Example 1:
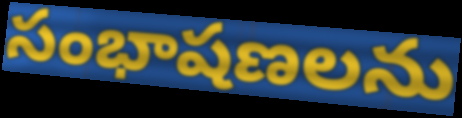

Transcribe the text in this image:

సంభాషణలను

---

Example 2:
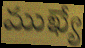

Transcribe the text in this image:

ముఖ్యే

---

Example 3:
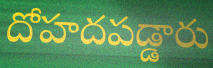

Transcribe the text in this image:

దోహదపడ్డారు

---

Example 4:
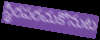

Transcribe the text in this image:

స్థిరపరచుకొనుట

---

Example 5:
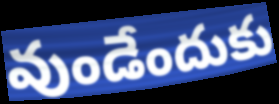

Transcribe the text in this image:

వుండేందుకు